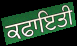
ਕਫਾਇਤੀ